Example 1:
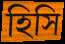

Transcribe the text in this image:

হিসি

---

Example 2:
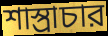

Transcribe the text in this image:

শাস্ত্রাচার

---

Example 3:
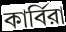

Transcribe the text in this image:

কার্বিরা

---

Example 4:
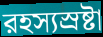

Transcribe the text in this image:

রহস্যস্রষ্টা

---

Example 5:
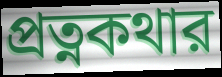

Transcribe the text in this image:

প্রত্নকথার